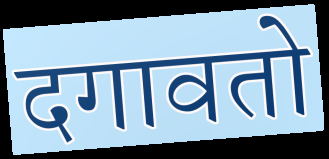
दगावतो